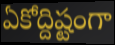
ఏకోద్దిష్టంగా